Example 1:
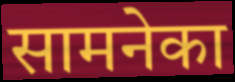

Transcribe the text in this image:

सामनेका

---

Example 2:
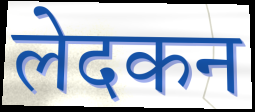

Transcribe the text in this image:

लेदकन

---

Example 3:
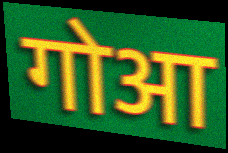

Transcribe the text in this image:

गोआ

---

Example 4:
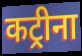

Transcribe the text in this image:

कट्रीना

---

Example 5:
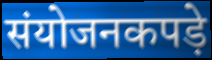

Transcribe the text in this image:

संयोजनकपड़े